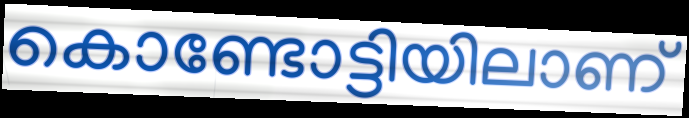
കൊണ്ടോട്ടിയിലാണ്